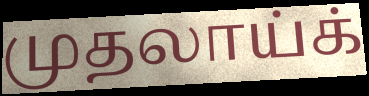
முதலாய்க்